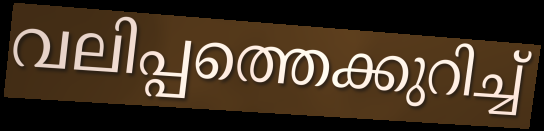
വലിപ്പത്തെക്കുറിച്ച്